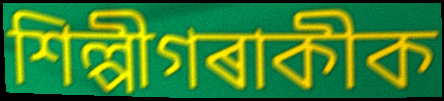
শিল্পীগৰাকীক